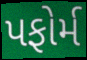
પફોર્મ